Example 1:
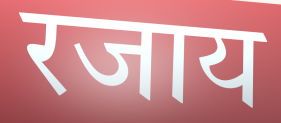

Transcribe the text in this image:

रजाय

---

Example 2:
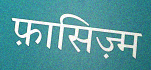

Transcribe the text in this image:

फ़ासिज़्म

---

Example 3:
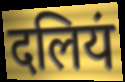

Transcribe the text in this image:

दलियं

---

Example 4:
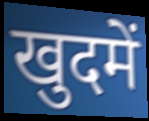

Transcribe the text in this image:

खुदमें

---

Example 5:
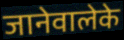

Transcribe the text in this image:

जानेवालेके